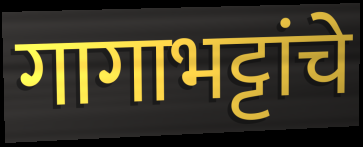
गागाभट्टांचे